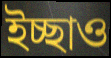
ইচ্ছাও